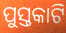
ପୁସ୍ତକାଟି